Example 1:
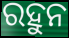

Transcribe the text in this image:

ରହୁନ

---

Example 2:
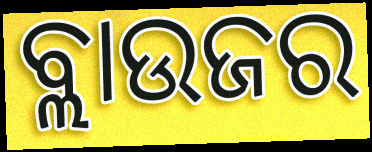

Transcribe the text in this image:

ବ୍ଲାଉଜର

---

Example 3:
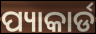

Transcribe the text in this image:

ପ୍ୟାକାର୍ଡ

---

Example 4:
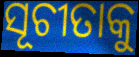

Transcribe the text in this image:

ସୂଚୀତାକୁ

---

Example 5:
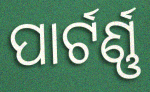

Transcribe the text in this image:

ପାର୍ଟର୍ଣ୍ଣ